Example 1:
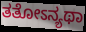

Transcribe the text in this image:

ತತೋಽನ್ಯಥಾ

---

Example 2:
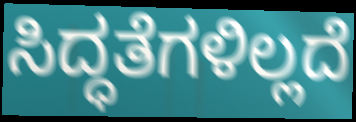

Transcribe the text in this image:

ಸಿದ್ಧತೆಗಳಿಲ್ಲದೆ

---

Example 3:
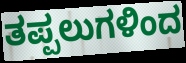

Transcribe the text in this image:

ತಪ್ಪಲುಗಳಿಂದ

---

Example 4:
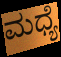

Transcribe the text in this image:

ಮಧ್ಯೆ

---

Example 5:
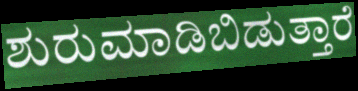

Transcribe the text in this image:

ಶುರುಮಾಡಿಬಿಡುತ್ತಾರೆ